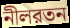
নীলরতন